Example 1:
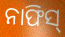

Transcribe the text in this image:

ନାଫିସ୍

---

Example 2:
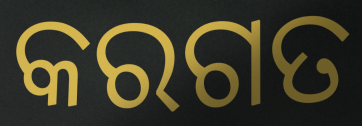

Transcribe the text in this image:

କରଗତ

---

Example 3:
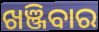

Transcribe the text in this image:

ଖଞ୍ଜିବାର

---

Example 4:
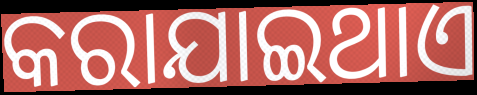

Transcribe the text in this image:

କରାଯାଇଥାଏ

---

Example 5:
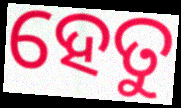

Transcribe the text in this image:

ହେତୁ